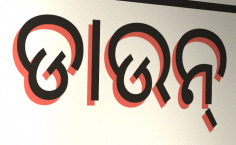
ଡାଉନ୍